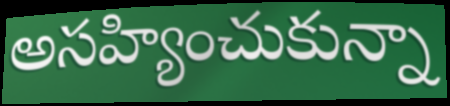
అసహ్యించుకున్నా